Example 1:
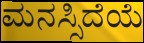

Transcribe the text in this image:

ಮನಸ್ಸಿದೆಯೆ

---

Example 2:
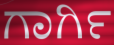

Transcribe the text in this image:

ಗಾರ್ಗಿ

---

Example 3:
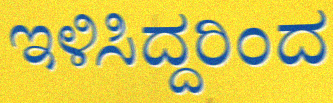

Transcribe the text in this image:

ಇಳಿಸಿದ್ದರಿಂದ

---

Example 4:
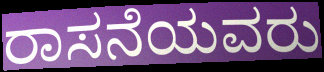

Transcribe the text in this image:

ರಾಸನೆಯವರು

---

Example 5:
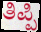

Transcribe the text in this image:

ತಿಪ್ಪಿ